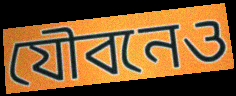
যৌবনেও